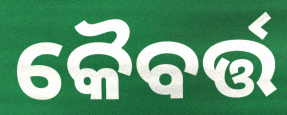
କୈବର୍ତ୍ତ